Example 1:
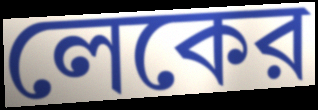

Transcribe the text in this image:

লেকের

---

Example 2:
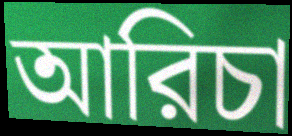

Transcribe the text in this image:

আরিচা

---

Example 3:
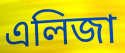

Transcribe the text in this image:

এলিজা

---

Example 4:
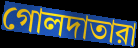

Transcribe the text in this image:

গোলদাতারা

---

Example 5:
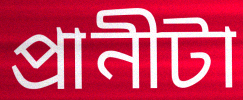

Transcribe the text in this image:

প্রানীটা